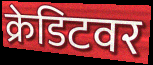
क्रेडिटवर